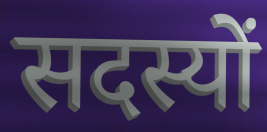
सदस्यों